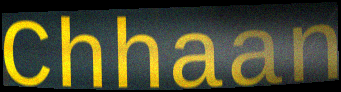
Chhaan